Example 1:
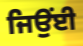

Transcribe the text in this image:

ਜਿਉਂਈ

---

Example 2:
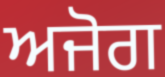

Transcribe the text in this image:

ਅਜੋਗ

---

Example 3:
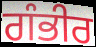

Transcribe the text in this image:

ਗੰਭੀਰ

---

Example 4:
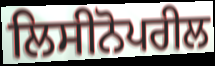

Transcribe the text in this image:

ਲਿਸੀਨੋਪਰੀਲ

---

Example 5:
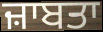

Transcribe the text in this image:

ਜ਼ਾਬਤਾ